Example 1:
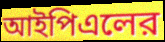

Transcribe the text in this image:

আইপিএলের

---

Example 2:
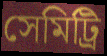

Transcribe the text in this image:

সেমিট্রি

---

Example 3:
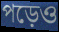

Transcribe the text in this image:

পড়েও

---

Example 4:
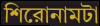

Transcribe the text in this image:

শিরোনামটা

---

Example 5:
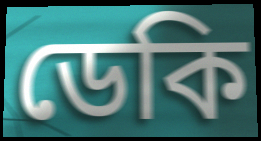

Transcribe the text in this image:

ডেকি